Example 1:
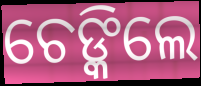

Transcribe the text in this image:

ଚେଙ୍କିଲେ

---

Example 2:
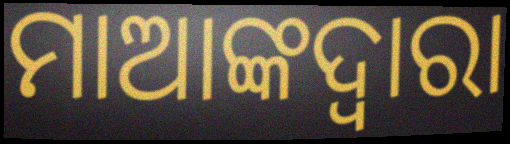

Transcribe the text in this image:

ମାଆଙ୍କଦ୍ଵାରା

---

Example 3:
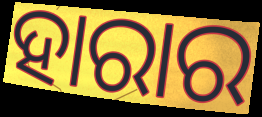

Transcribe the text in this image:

ହାରାର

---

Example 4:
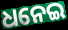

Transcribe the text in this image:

ଧନେଇ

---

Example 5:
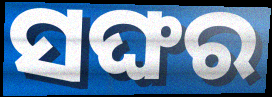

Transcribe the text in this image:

ସଙ୍ଘର